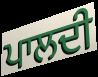
ਪਾਲਦੀ